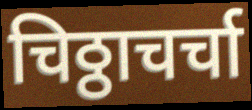
चिठ्ठाचर्चा